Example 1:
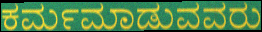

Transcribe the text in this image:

ಕರ್ಮಮಾಡುವವರು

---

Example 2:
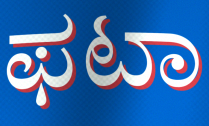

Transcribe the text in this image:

ಫಟಾ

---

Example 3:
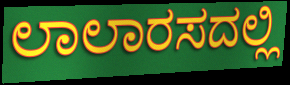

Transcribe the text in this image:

ಲಾಲಾರಸದಲ್ಲಿ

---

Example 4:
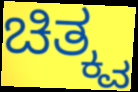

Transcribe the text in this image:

ಚಿತ್ಕ್ವ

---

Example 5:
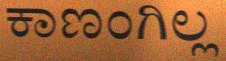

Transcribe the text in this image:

ಕಾಣಂಗಿಲ್ಲ